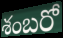
శంబరో